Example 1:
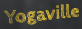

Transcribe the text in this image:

Yogaville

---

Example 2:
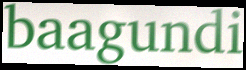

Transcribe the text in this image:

baagundi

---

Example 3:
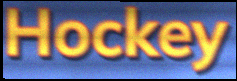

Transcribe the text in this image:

Hockey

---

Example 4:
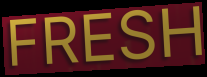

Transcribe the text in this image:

FRESH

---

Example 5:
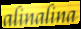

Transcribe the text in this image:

alinalina